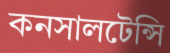
কনসালটেন্সি